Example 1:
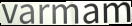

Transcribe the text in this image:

varmam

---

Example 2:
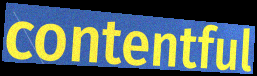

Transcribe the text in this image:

contentful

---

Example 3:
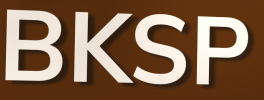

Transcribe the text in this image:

BKSP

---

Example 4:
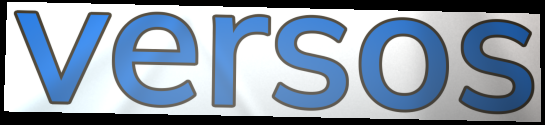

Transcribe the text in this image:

versos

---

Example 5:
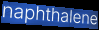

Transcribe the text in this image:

naphthalene